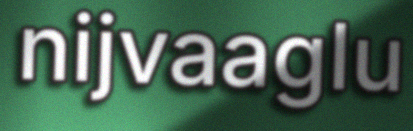
nijvaaglu